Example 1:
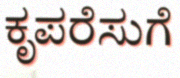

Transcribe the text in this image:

ಕೃಪರೆಸುಗೆ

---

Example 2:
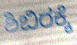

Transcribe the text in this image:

ಶಿಬಿರಕ್ಕೆ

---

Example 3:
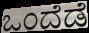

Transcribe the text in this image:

ಒಂದೆಡೆ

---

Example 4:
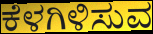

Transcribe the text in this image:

ಕೆಳಗಿಳಿಸುವ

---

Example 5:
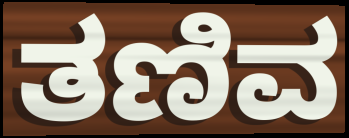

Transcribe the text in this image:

ತಣಿವ